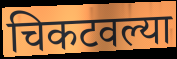
चिकटवल्या